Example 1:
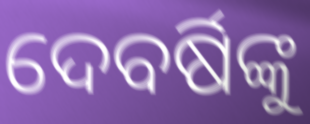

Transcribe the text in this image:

ଦେବର୍ଷିଙ୍କୁ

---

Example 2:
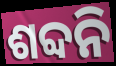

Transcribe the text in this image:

ଶବ୍ଦନି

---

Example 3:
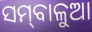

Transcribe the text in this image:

ସମ୍‌ବାଳୁଆ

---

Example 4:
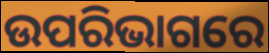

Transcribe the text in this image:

ଉପରିଭାଗରେ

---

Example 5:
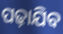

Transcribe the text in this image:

ପଢ଼ାଯିବ